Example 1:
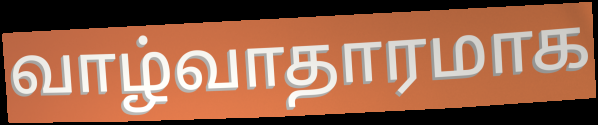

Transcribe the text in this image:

வாழ்வாதாரமாக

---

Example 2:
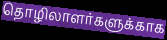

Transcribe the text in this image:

தொழிலாளர்களுக்காக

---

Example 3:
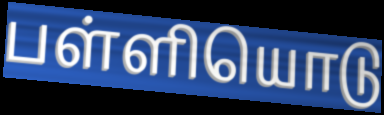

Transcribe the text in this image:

பள்ளியொடு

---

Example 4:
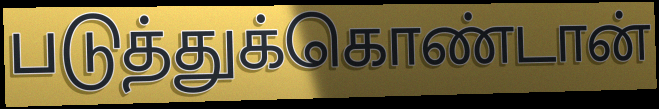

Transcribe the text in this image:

படுத்துக்கொண்டான்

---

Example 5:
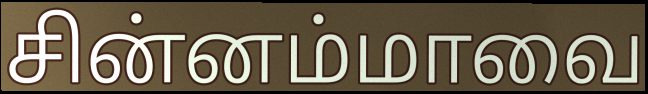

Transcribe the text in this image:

சின்னம்மாவை